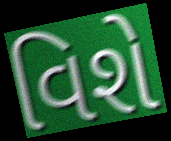
વિશે